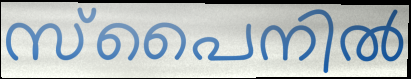
സ്പൈനിൽ